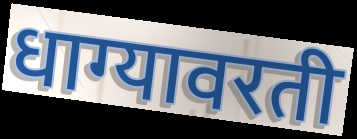
धाग्यावरती